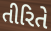
તીરિતે